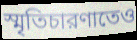
স্মৃতিচারণাতেও